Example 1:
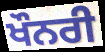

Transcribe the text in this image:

ਖੌਨਰੀ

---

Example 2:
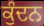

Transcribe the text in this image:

ਕੁੰਦਨ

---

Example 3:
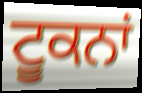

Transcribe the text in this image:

ਟੂਕਨਾਂ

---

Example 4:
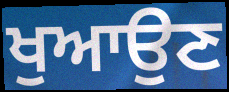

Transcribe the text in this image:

ਖੁਆਉਣ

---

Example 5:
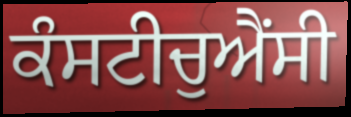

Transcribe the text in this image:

ਕੰਸਟੀਚੁਐਂਸੀ